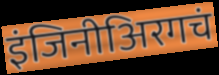
इंजिनीअिरगचं